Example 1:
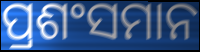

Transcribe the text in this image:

ପ୍ରଶଂସମାନ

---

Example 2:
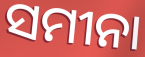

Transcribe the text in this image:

ସମୀନା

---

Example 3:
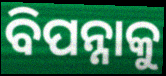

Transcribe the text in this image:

ବିପନ୍ନାକୁ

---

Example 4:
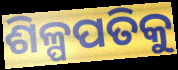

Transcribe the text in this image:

ଶିଳ୍ପପତିକୁ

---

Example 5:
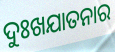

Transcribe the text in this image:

ଦୁଃଖଯାତନାର